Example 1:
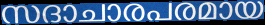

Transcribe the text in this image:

സദാചാരപരമായ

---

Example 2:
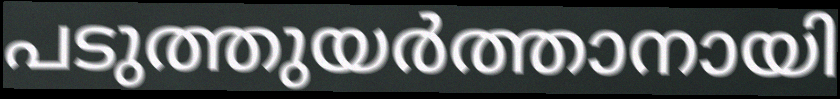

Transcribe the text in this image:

പടുത്തുയർത്താനായി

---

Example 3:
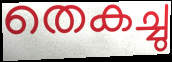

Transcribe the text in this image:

തെകച്ചു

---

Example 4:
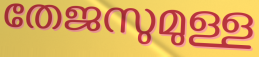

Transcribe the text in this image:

തേജസുമുള്ള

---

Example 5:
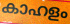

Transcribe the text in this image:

കാഹളം